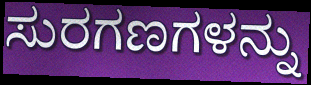
ಸುರಗಣಗಳನ್ನು